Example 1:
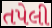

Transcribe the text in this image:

તપેલી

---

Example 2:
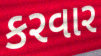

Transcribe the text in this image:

કરવાર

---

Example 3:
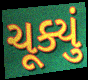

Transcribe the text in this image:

ચૂક્યું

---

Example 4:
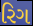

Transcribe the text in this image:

રિગ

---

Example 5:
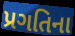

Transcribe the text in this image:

પ્રગતિના